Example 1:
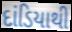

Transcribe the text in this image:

દાંડિયાથી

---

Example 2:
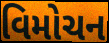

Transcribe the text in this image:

વિમોચન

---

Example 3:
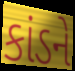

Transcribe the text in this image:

કાંડને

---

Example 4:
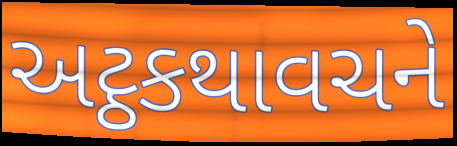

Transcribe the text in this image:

અટ્ઠકથાવચને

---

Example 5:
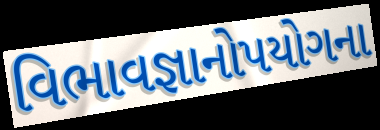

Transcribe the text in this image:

વિભાવજ્ઞાનોપયોગના